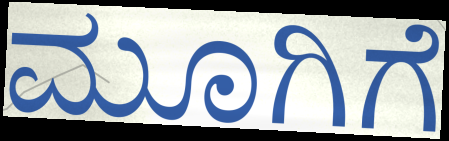
ಮೂಗಿಗೆ